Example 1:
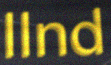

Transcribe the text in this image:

IInd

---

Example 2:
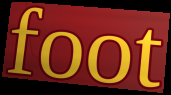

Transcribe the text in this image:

foot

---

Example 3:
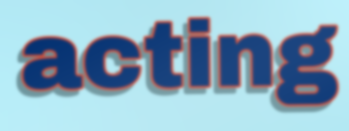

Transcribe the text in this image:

acting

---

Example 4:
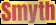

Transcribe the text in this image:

Smyth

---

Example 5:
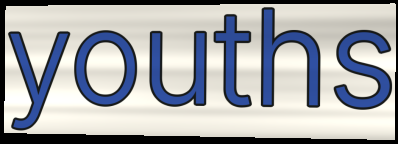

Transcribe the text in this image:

youths